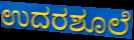
ಉದರಶೂಲೆ